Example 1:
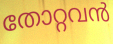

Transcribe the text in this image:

തോറ്റവൻ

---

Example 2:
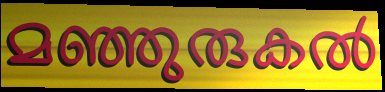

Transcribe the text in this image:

മഞ്ഞുരുകൽ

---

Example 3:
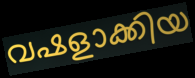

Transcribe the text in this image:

വഷളാക്കിയ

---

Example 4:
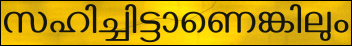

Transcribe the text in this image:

സഹിച്ചിട്ടാണെങ്കിലും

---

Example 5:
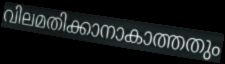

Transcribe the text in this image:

വിലമതിക്കാനാകാത്തതും